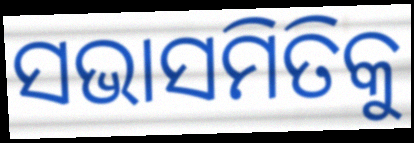
ସଭାସମିତିକୁ